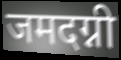
जमदग्नी